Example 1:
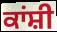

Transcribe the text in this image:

ਕਾਂਸ਼ੀ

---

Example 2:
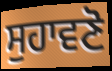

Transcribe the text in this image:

ਸੁਹਾਵਣੋ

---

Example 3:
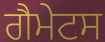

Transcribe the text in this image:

ਗੈਮੇਟਸ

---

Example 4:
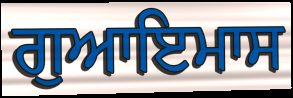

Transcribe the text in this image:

ਗੁਆਇਮਾਸ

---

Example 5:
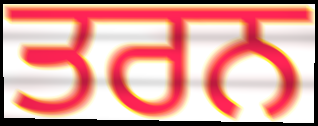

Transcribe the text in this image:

ਤਰਨ